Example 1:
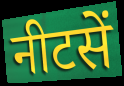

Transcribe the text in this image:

नीटसें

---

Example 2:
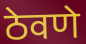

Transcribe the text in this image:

ठेवणे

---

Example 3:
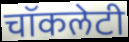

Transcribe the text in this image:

चॉकलेटी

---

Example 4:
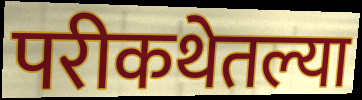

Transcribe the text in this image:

परीकथेतल्या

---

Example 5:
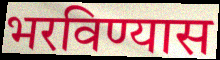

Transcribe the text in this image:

भरविण्यास